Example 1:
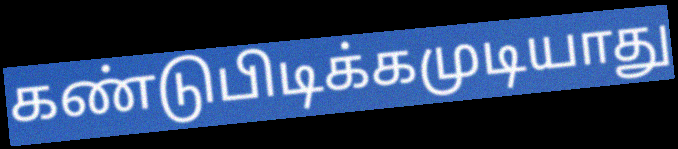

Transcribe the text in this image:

கண்டுபிடிக்கமுடியாது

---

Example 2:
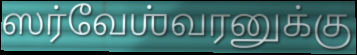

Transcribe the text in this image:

ஸர்வேஶ்வரனுக்கு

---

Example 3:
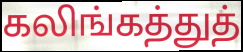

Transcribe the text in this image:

கலிங்கத்துத்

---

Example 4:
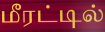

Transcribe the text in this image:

மீரட்டில்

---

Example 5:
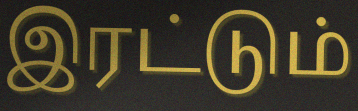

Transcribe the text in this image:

இரட்டும்